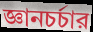
জ্ঞানচর্চার